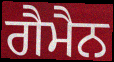
ਗੈਮੈਨ